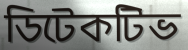
ডিটেকটিভ